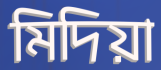
মিদিয়া